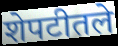
शेपटीतले